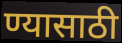
ण्यासाठी